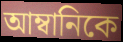
আম্বানিকে